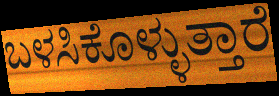
ಬಳಸಿಕೊಳ್ಳುತ್ತಾರೆ